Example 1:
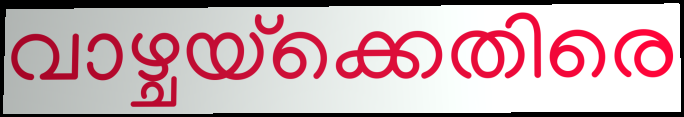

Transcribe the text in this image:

വാഴ്ചയ്‌ക്കെതിരെ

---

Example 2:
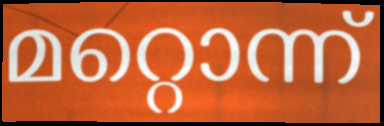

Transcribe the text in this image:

മറ്റൊന്ന്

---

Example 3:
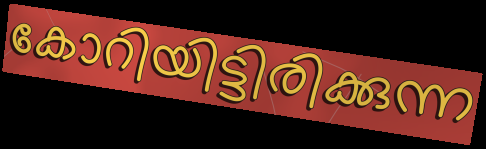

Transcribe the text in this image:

കോറിയിട്ടിരിക്കുന്ന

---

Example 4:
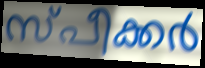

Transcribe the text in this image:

സ്പീക്കർ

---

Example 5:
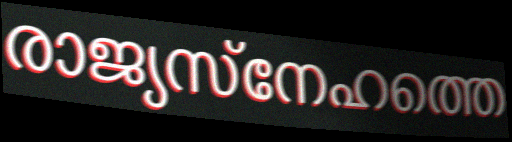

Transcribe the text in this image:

രാജ്യസ്‌നേഹത്തെ